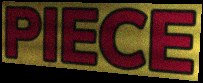
PIECE